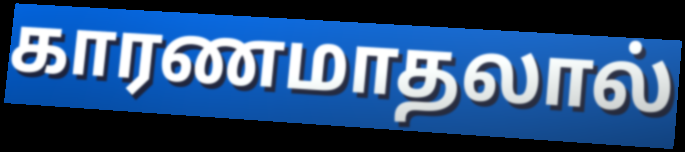
காரணமாதலால்